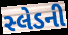
સ્લેડની